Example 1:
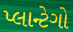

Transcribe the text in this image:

પ્લાન્ટેગો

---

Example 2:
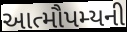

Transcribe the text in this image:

આત્મૌપમ્યની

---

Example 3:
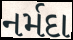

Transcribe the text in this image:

નર્મદા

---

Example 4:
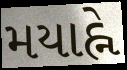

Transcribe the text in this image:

મયાહ્ને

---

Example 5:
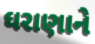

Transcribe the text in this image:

ઘરાણાને